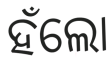
ହଁଲୋ